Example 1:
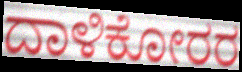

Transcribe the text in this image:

ದಾಳಿಕೋರರ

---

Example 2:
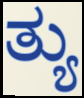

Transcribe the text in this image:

ತ್ಯು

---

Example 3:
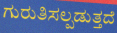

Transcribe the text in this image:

ಗುರುತಿಸಲ್ಪಡುತ್ತದೆ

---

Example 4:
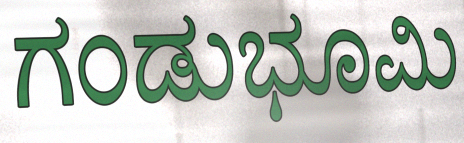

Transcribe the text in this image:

ಗಂಡುಭೂಮಿ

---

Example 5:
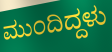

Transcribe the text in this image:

ಮುಂದಿದ್ದಳು